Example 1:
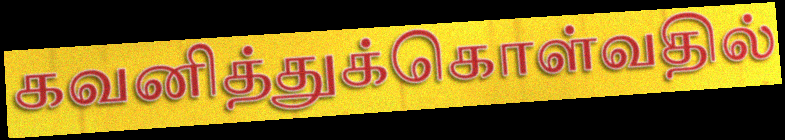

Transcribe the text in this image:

கவனித்துக்கொள்வதில்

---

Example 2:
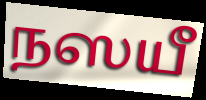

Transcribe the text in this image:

நஸயீ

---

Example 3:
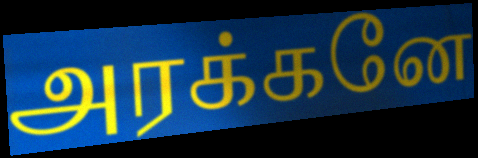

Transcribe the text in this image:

அரக்கனே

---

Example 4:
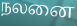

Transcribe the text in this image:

நலனை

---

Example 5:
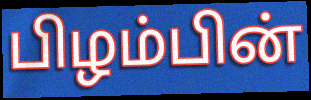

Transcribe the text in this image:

பிழம்பின்